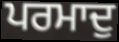
ਪਰਮਾਦੁ